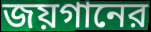
জয়গানের